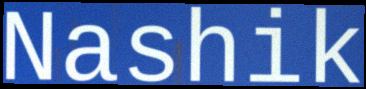
Nashik